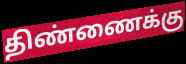
திண்ணைக்கு